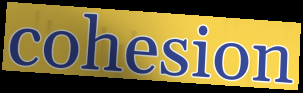
cohesion